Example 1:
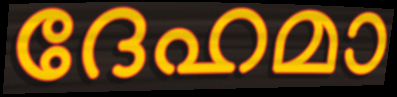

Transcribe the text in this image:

ദേഹമാ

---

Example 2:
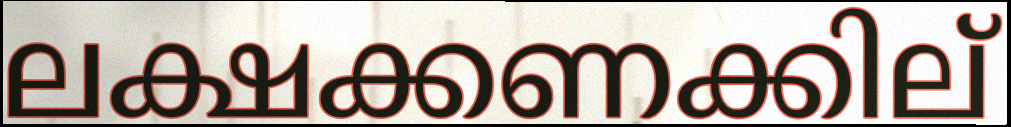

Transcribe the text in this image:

ലക്ഷക്കണക്കില്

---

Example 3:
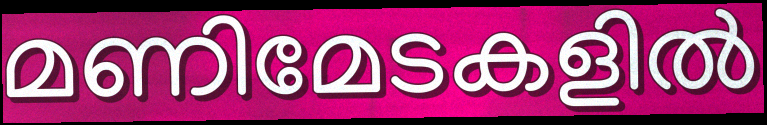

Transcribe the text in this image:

മണിമേടകളിൽ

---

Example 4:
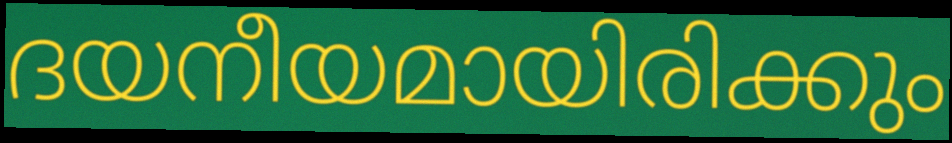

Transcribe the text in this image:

ദയനീയമായിരിക്കും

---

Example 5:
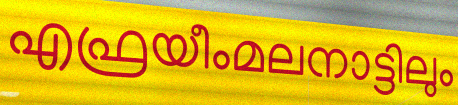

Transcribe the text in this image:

എഫ്രയീംമലനാട്ടിലും